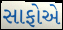
સાફોએ